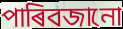
পাৰিবজানো